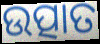
ଉତ୍ପାତ